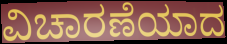
ವಿಚಾರಣೆಯಾದ